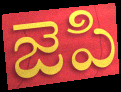
జెపి